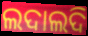
ଲଦାଲଦି